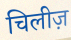
चिलीज़